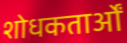
शोधकतार्ओं